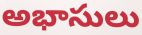
అభాసులు